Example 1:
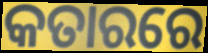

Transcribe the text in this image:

କତାରରେ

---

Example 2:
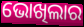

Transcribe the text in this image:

ଭୋଖିଲାର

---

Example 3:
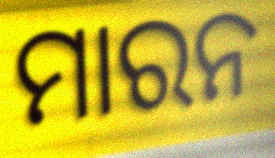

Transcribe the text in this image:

ମାରନ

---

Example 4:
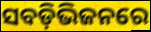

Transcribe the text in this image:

ସବଡ଼ିଭିଜନରେ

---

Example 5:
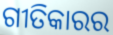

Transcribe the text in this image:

ଗୀତିକାରର